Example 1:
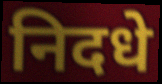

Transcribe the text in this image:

निदधे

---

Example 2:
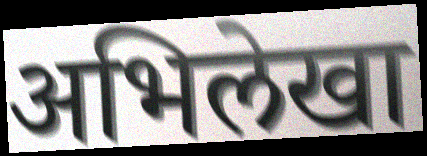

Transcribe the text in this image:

अभिलेखा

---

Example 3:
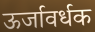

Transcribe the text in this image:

ऊर्जावर्धक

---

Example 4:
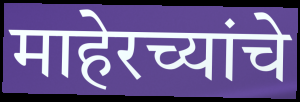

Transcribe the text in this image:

माहेरच्यांचे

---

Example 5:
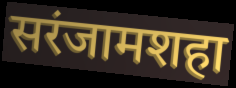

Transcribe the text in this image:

सरंजामशहा